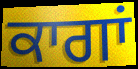
ਕਾਗਾਂ